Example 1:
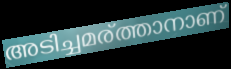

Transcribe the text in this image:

അടിച്ചമര്ത്താനാണ്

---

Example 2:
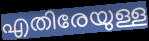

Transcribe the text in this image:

എതിരേയുള്ള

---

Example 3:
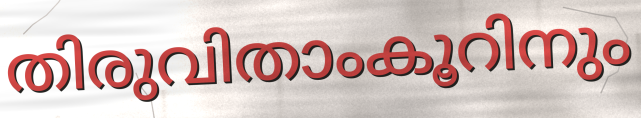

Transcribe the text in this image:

തിരുവിതാംകൂറിനും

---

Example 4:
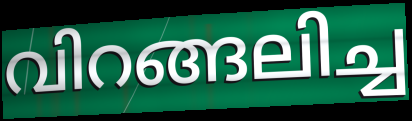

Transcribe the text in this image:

വിറങ്ങലിച്ച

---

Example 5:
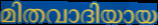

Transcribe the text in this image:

മിതവാദിയായ